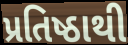
પ્રતિષ્ઠાથી